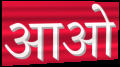
आओ